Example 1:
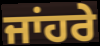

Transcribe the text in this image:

ਜਾਂਹਰੇ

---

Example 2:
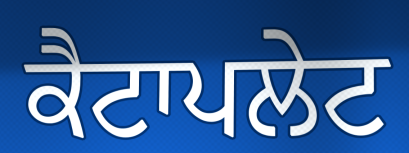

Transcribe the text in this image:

ਕੈਟਾਪਲੇਟ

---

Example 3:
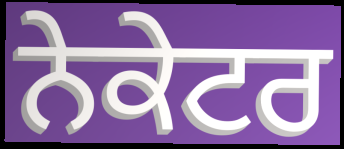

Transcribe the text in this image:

ਨੇਕੇਟਰ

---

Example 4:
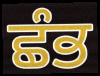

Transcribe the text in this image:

ਛੰਭ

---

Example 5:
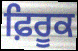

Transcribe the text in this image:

ਫ਼ਿਰੂਕ